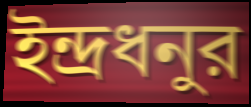
ইন্দ্রধনুর